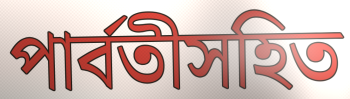
পার্বতীসহিত